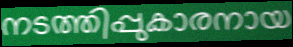
നടത്തിപ്പുകാരനായ